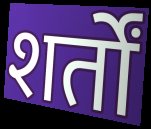
शर्तों